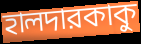
হালদারকাকু